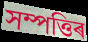
সম্পত্তিৰ